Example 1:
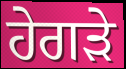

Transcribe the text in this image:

ਹੇਗੜੇ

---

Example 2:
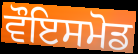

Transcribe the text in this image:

ਵੌਇਸਮੋਡ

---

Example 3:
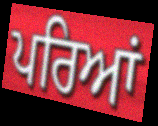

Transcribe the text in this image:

ਪਰਿਆਂ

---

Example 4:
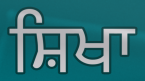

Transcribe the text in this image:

ਸ਼ਿਖਾ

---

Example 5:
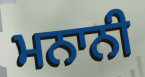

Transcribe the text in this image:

ਮਨਾਨੀ